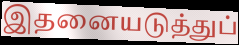
இதனையடுத்துப்